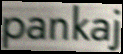
pankaj